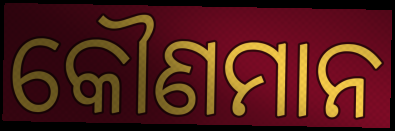
କୌଣମାନ